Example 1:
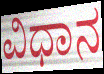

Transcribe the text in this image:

ವಿಧಾನ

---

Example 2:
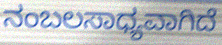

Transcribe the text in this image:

ನಂಬಲಸಾಧ್ಯವಾಗಿದೆ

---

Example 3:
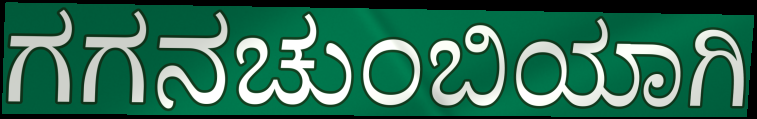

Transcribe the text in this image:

ಗಗನಚುಂಬಿಯಾಗಿ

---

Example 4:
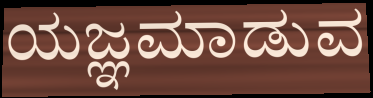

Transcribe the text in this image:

ಯಜ್ಞಮಾಡುವ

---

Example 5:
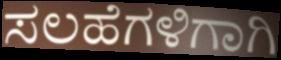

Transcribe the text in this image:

ಸಲಹೆಗಳಿಗಾಗಿ